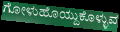
ಗೋಳುಹೊಯ್ದುಕೊಳ್ಳುವ